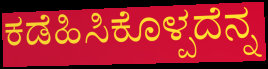
ಕಡೆಹಿಸಿಕೊಳ್ಪದೆನ್ನ